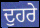
ਦੁਹਰੇ